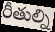
రీతుల్ని